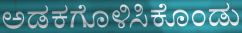
ಅಡಕಗೊಳಿಸಿಕೊಂಡು